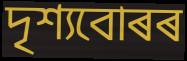
দৃশ্যবোৰৰ